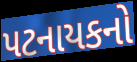
પટનાયકનો